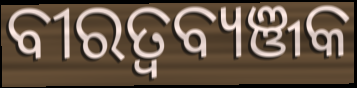
ବୀରତ୍ବବ୍ୟଞ୍ଜକ